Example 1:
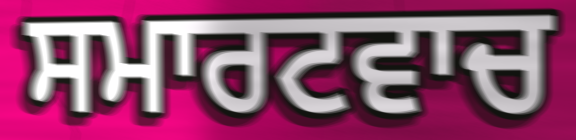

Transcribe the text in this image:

ਸਮਾਰਟਵਾਚ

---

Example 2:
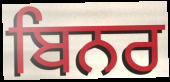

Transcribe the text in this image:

ਬਿਨਰ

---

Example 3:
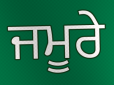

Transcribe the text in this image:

ਜਮੂਰੇ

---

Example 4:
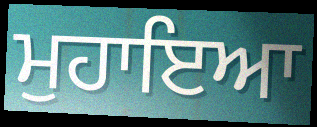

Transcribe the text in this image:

ਮੁਹਾਇਆ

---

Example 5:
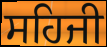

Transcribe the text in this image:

ਸਹਿਜੀ